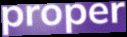
proper